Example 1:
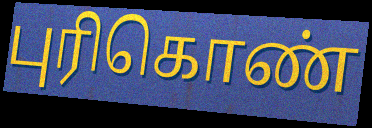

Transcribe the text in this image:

புரிகொண்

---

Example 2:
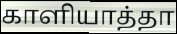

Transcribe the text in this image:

காளியாத்தா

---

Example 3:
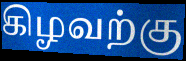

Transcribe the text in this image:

கிழவற்கு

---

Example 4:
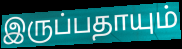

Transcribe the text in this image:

இருப்பதாயும்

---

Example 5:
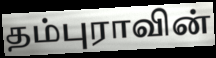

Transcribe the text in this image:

தம்புராவின்